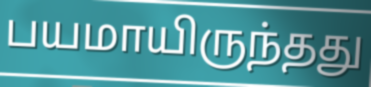
பயமாயிருந்தது